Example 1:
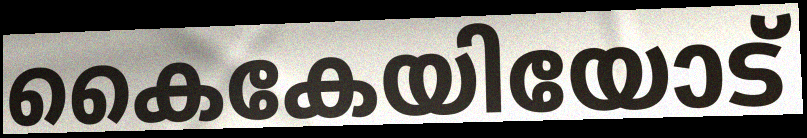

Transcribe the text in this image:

കൈകേയിയോട്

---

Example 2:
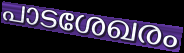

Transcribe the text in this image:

പാടശേഖരം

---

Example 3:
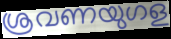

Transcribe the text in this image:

ശ്രവണയുഗള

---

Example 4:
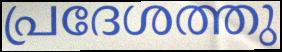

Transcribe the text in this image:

പ്രദേശത്തു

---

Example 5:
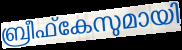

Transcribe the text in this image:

ബ്രീഫ്കേസുമായി